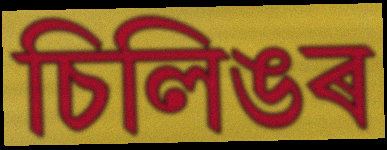
চিলিঙৰ